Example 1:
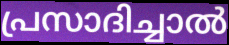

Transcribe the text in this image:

പ്രസാദിച്ചാൽ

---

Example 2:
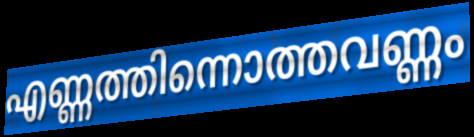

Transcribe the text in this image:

എണ്ണത്തിന്നൊത്തവണ്ണം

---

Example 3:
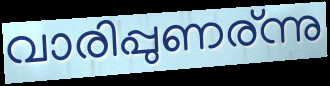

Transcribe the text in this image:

വാരിപ്പുണര്ന്നു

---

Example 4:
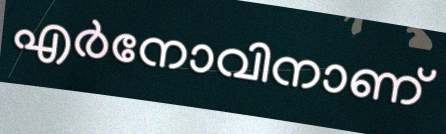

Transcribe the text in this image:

എർനോവിനാണ്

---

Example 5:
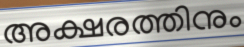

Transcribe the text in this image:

അക്ഷരത്തിനും